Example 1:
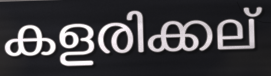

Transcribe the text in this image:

കളരിക്കല്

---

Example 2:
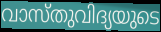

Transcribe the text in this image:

വാസ്തുവിദ്യയുടെ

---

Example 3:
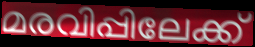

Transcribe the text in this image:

മരവിപ്പിലേക്ക്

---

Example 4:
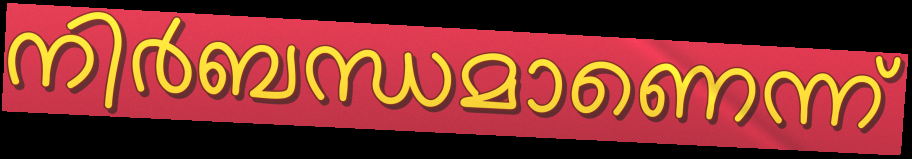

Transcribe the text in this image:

നിർബന്ധമാണെന്ന്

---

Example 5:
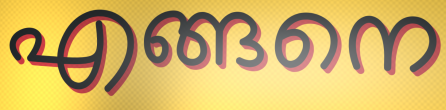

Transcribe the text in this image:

എങ്ങനെ